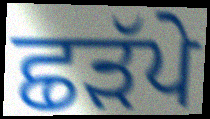
ਛੜੱਪੇ